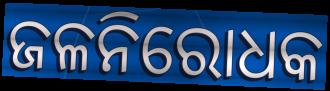
ଜଳନିରୋଧକ